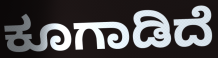
ಕೂಗಾಡಿದೆ